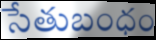
సేతుబంధం